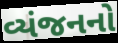
વ્યંજનનો